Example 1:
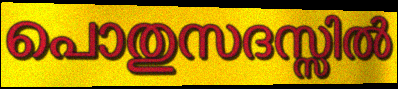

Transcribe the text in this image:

പൊതുസദസ്സിൽ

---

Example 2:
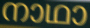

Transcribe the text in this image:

നാഥാ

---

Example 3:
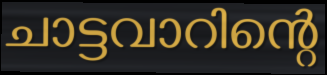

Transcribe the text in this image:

ചാട്ടവാറിന്റെ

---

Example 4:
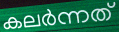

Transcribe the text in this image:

കലർന്നത്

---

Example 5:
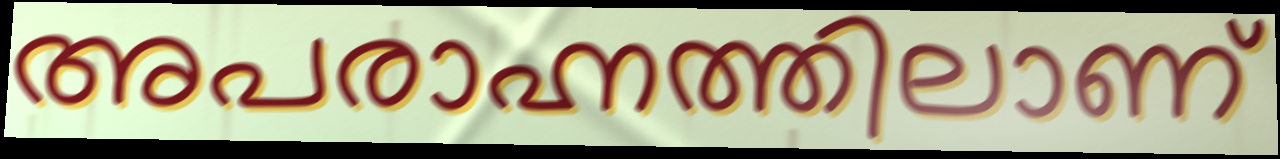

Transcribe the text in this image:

അപരാഹ്നത്തിലാണ്